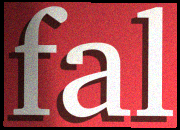
fal